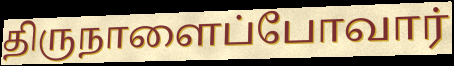
திருநாளைப்போவார்